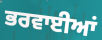
ਭਰਵਾਈਆਂ